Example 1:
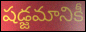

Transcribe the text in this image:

షడ్జమానికీ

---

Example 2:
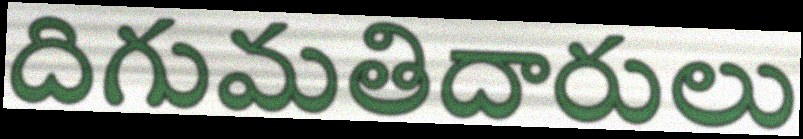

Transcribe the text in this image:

దిగుమతిదారులు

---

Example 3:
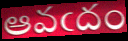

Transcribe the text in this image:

ఆవఁదం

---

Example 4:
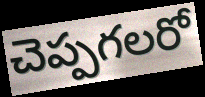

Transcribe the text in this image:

చెప్పగలరో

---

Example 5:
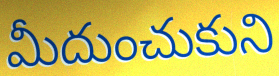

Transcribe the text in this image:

మీదుంచుకుని